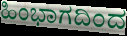
ಹಿಂಭಾಗದಿಂದ